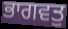
ਭਾਗਵਤੁ